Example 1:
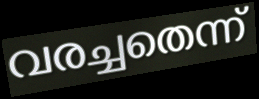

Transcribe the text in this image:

വരച്ചതെന്ന്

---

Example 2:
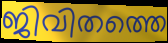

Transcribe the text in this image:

ജിവിതത്തെ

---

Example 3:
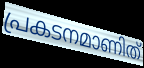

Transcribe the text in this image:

പ്രകടനമാണിത്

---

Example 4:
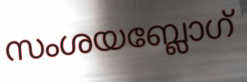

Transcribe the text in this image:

സംശയബ്ലോഗ്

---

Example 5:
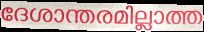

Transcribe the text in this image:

ദേശാന്തരമില്ലാത്ത